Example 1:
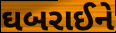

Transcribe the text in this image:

ઘબરાઈને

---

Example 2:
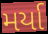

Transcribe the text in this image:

મર્યા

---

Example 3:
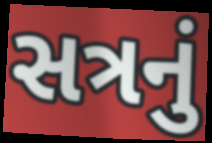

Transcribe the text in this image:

સત્રનું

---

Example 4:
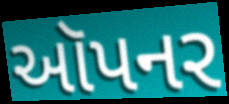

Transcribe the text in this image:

ઑપનર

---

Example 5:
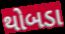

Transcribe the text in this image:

થોબડા